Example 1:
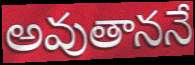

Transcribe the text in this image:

అవుతాననే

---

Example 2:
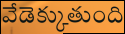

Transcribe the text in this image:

వేడెక్కుతుంది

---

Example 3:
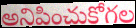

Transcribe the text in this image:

అనిపించుకోగల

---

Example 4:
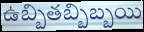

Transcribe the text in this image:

ఉబ్బితబ్బిబ్బయి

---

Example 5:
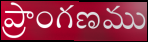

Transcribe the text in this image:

ప్రాంగణము